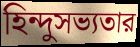
হিন্দুসভ্যতার